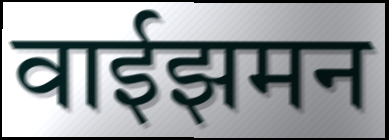
वाईझमन